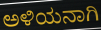
ಅಳಿಯನಾಗಿ